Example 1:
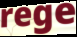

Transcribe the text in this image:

rege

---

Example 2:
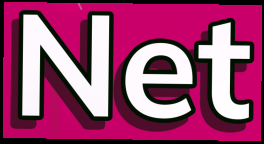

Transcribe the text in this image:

Net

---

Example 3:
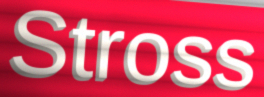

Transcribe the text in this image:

Stross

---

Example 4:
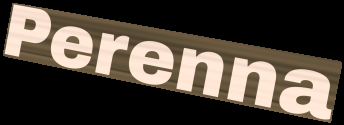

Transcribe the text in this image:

Perenna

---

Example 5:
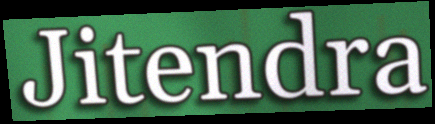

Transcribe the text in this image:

Jitendra